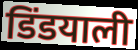
डिंडयाली